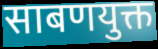
साबणयुक्त